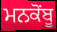
ਮਨਕੋਂਬੂ